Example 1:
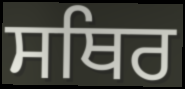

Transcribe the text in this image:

ਸਥਿਰ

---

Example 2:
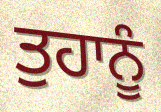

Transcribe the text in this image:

ਤੁਹਾਨੂੰ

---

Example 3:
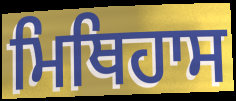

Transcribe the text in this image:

ਮਿਥਿਹਾਸ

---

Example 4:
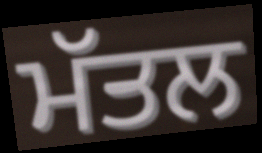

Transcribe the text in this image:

ਮੱਤਲ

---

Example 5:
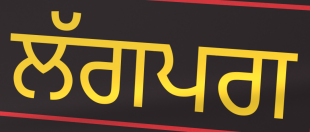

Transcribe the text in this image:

ਲੱਗਪਗ